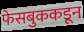
फेसबुककडून